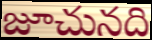
జూచునది